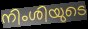
നിംശിയുടെ